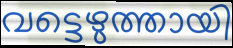
വട്ടെഴുത്തായി